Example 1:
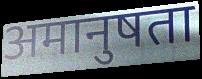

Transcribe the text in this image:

अमानुषता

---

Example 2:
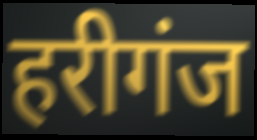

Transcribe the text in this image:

हरीगंज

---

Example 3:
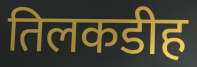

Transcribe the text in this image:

तिलकडीह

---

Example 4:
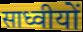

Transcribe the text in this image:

साध्वीयों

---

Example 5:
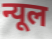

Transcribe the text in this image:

न्यूल